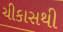
ચીકાસથી